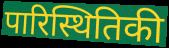
पारिस्थितिकी